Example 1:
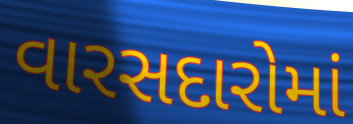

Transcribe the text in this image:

વારસદારોમાં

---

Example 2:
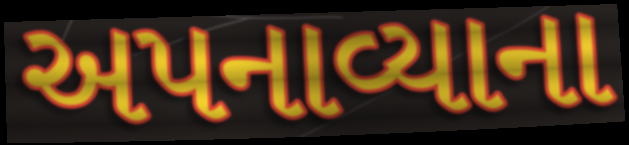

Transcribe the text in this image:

અપનાવ્યાના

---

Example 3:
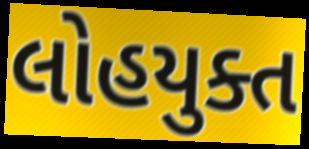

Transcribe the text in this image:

લોહયુક્ત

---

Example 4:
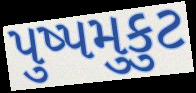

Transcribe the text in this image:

પુષ્પમુકુટ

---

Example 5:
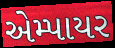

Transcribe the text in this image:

એમ્પાયર